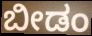
ಬೀಡಂ